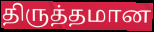
திருத்தமான